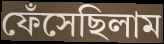
ফেঁসেছিলাম